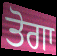
ਤੋਗਾ